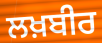
ਲਖ਼ਬੀਰ